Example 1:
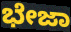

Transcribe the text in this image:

ಭೇಜಾ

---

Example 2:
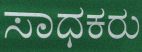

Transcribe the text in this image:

ಸಾಧಕರು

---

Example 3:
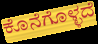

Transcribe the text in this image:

ಕೊನೆಗೊಳ್ಳದೆ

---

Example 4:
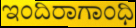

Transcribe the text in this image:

ಇಂದಿರಾಗಾಂಧಿ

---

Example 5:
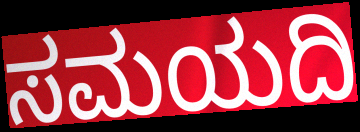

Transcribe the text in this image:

ಸಮಯದಿ